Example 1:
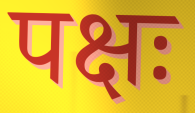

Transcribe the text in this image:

पक्षः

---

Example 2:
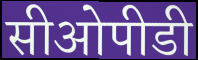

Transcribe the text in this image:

सीओपीडी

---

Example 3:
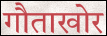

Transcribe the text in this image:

गौताखोर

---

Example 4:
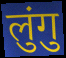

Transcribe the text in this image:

लुंगु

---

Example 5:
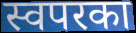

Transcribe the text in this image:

स्वपरका